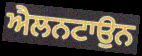
ਐਲਨਟਾਉਨ